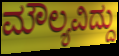
ಮೌಲ್ಯವಿದ್ದು